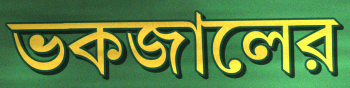
ভকজালের